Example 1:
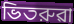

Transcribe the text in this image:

ভিতৰুৱা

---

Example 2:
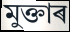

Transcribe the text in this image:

মুক্তাৰ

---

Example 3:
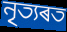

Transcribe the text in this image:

নৃত্যৰত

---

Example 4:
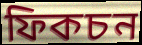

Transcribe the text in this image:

ফিকচন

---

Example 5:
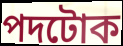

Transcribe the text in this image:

পদটোক